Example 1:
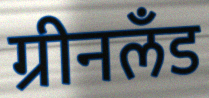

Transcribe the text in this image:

ग्रीनलँड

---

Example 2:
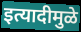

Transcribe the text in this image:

इत्यादीमुळे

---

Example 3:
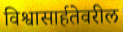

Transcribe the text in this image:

विश्वासार्हतेवरील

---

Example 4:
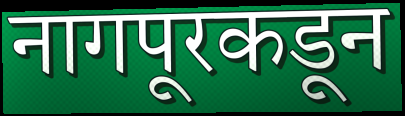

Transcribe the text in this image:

नागपूरकडून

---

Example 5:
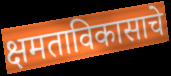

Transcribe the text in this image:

क्षमताविकासाचे